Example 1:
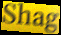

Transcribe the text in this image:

Shag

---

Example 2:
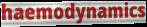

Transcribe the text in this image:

haemodynamics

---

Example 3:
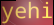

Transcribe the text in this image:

yehi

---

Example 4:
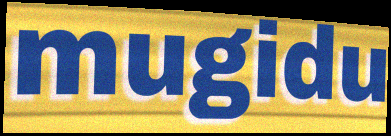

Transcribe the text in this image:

mugidu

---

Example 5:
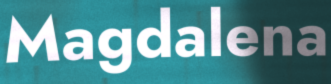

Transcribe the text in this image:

Magdalena